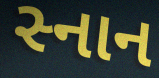
સ્નાન